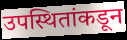
उपस्थितांकडून